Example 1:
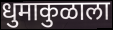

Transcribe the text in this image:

धुमाकुळाला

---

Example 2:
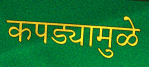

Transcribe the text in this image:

कपड्यामुळे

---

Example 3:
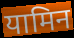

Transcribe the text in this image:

यामिन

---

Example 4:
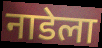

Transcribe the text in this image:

नाडेला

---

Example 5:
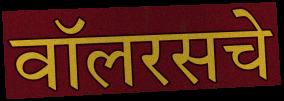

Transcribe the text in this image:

वॉलरसचे